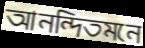
আনন্দিতমনে